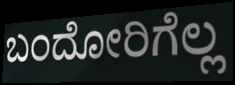
ಬಂದೋರಿಗೆಲ್ಲ